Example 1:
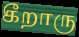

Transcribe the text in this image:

கீறாரு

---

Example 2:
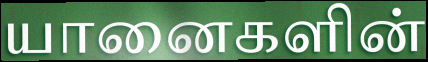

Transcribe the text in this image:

யானைகளின்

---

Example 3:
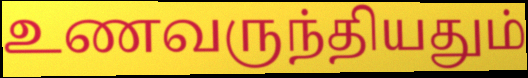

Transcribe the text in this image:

உணவருந்தியதும்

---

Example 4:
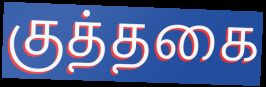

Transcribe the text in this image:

குத்தகை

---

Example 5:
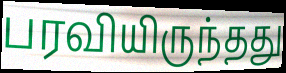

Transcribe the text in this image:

பரவியிருந்தது